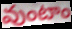
వుంటాం